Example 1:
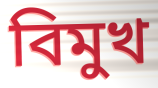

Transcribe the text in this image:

বিমুখ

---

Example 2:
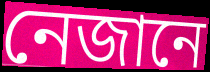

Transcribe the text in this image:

নেজানে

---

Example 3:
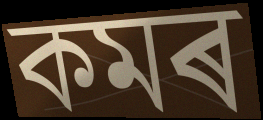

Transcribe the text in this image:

কমৰ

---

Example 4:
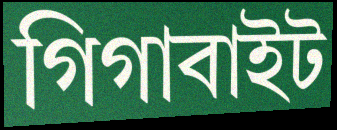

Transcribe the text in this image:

গিগাবাইট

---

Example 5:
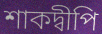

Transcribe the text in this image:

শাকদ্বীপি